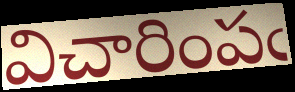
విచారింపఁ